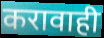
करावाही